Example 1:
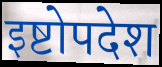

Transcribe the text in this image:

इष्टोपदेश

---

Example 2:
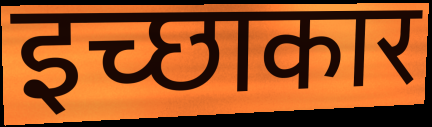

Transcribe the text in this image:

इच्छाकार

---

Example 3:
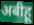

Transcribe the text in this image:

अबीहू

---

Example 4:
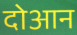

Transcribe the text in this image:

दोआन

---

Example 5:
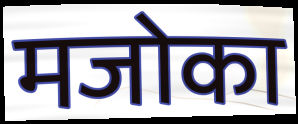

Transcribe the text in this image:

मजोका